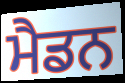
ਮੈਡਨ